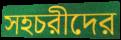
সহচরীদের